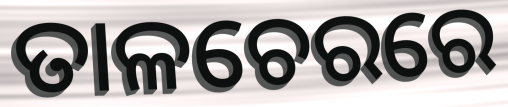
ତାଳଚେରରେ